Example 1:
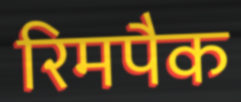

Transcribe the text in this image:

रिमपैक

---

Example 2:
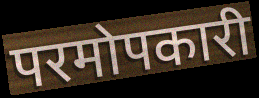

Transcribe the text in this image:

परमोपकारी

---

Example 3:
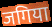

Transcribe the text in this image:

जगिया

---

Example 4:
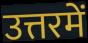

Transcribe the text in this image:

उत्तरमें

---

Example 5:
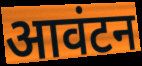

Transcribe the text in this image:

आवंटन